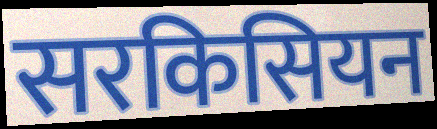
सरकिसियन